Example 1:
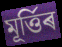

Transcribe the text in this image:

মূৰ্ত্তিৰ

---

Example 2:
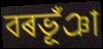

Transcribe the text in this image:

বৰভূঁঞা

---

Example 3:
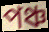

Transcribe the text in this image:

পঞ্চ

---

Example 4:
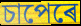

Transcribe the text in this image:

চাপেৰে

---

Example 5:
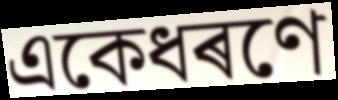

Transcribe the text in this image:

একেধৰণে